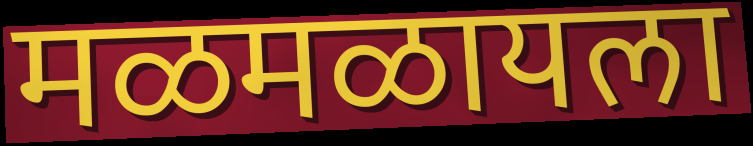
मळमळायला